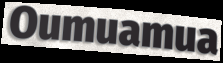
Oumuamua